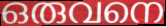
ഒരുവനെ